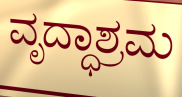
ವೃದ್ಧಾಶ್ರಮ